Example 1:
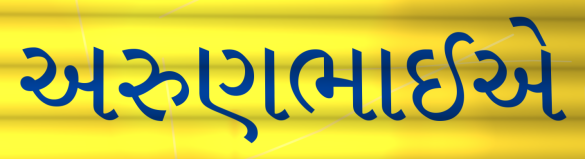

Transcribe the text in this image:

અરુણભાઈએ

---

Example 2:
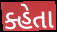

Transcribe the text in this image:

ક્હેતા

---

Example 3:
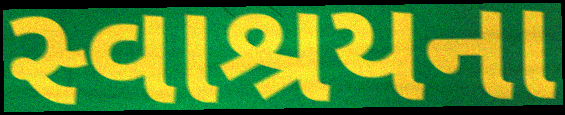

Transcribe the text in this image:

સ્વાશ્રયના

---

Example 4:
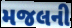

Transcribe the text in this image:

મજલની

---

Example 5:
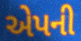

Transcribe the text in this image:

એપની